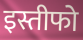
इस्तीफो